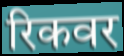
रिकवर